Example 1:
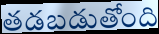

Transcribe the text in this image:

తడబడుతోంది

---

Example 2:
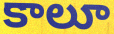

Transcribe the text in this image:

కాలూ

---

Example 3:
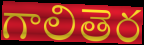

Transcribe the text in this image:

గాలితెర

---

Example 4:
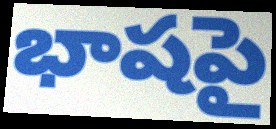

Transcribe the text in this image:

భాషపై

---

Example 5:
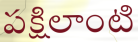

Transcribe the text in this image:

పక్షిలాంటి